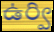
ఉర్వి